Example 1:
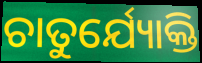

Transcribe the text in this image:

ଚାତୁର୍ଯ୍ୟୋକ୍ତି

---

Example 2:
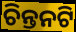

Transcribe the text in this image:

ଚିନ୍ତନଟି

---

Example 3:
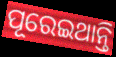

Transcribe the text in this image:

ପୂରେଇଥାନ୍ତି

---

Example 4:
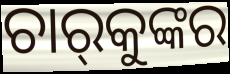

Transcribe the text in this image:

ଚାର୍‌କୁଙ୍କର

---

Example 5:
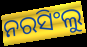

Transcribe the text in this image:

ନରସିଂଲୁ